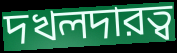
দখলদারত্ব